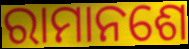
ରାମାନଶେ